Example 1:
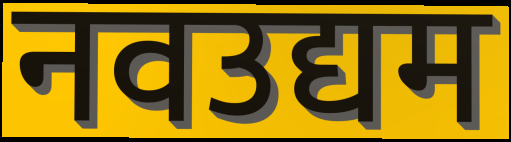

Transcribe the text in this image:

नवउद्यम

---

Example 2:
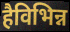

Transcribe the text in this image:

हैविभिन्न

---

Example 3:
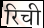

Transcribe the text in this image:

रिची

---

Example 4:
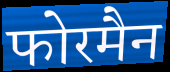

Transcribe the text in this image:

फोरमैन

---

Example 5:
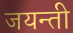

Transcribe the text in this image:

जयन्ती